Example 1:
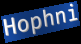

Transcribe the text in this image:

Hophni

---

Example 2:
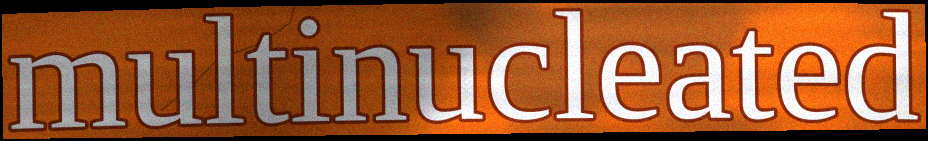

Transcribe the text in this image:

multinucleated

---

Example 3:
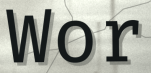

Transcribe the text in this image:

Wor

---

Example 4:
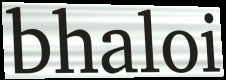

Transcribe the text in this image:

bhaloi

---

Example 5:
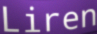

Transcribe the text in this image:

Liren